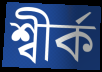
শ্বীৰ্ক